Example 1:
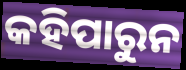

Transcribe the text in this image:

କହିପାରୁନ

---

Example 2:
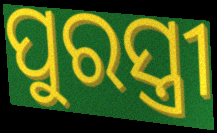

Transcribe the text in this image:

ପୁରସ୍ତ୍ରୀ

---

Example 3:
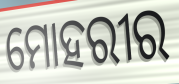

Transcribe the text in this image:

ମୋହରୀର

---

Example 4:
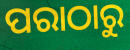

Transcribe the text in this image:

ପରାଠାରୁ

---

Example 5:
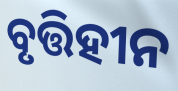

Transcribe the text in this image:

ବୃତ୍ତିହୀନ